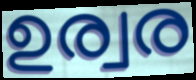
ഉര്വര